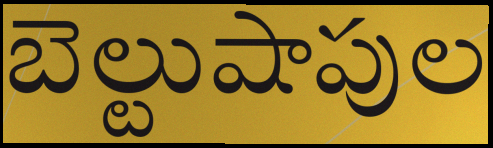
బెల్టుషాపుల